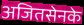
अजितसेनके